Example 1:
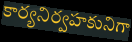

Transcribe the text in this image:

కార్యనిర్వహకునిగా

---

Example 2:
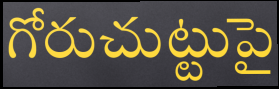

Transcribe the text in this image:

గోరుచుట్టుపై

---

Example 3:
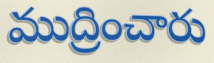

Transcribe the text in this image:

ముద్రించారు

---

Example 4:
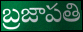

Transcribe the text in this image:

బ్రజాపతి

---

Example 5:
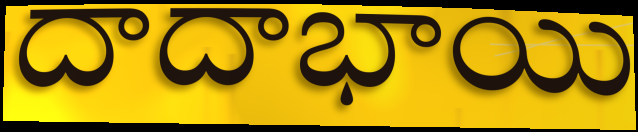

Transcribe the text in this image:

దాదాభాయి